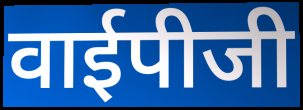
वाईपीजी